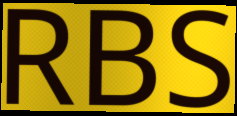
RBS